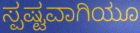
ಸ್ಪಷ್ಟವಾಗಿಯೂ